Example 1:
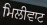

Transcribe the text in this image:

ਮਿਲੀਵਾਟ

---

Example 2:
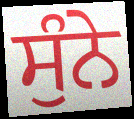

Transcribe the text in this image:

ਸੁੰਨੇ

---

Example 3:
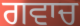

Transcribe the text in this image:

ਗਵਾਚ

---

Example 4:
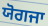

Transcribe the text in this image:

ਯੋਗਜਾ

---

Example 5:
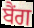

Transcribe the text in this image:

ਬੈਂਗ